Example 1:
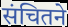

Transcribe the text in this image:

संचितने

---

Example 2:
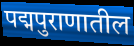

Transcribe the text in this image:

पद्मपुराणातील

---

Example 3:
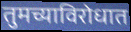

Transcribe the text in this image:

तुमच्याविरोधात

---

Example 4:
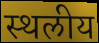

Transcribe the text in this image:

स्थलीय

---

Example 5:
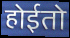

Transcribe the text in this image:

होईतो